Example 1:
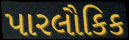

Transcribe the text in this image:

પારલૌકિક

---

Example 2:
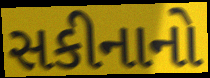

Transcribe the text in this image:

સકીનાનો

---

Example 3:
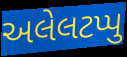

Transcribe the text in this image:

અલેલટપ્પુ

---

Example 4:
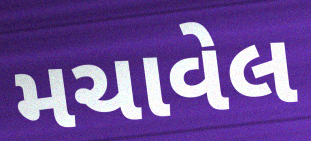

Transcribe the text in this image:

મચાવેલ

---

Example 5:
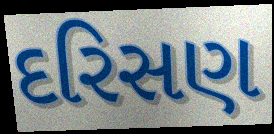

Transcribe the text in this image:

દરિસણ